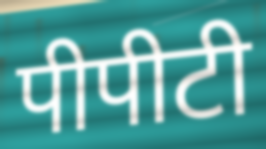
पीपीटी